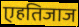
एहतिजाज